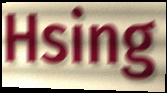
Hsing